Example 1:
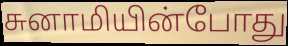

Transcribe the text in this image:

சுனாமியின்போது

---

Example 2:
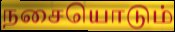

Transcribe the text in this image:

நசையொடும்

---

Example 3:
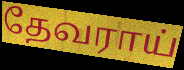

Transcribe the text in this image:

தேவராய்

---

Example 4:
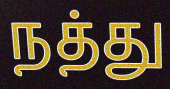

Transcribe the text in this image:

நத்து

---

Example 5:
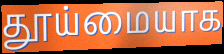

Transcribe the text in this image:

தூய்மையாக